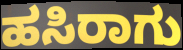
ಹಸಿರಾಗು